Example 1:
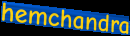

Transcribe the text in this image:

hemchandra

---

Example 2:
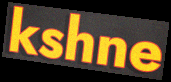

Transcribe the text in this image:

kshne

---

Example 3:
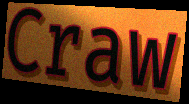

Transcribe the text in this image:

Craw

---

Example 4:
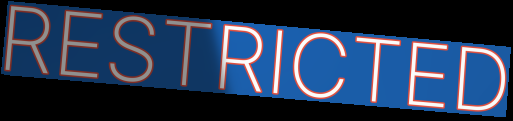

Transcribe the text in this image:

RESTRICTED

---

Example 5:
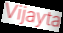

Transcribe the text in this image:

Vijayta